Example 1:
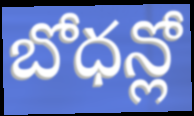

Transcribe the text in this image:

బోధన్లో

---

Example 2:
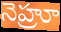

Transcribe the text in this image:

నెహ్రూ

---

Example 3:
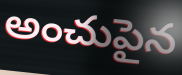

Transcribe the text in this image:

అంచుపైన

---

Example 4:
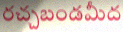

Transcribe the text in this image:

రచ్చబండమీద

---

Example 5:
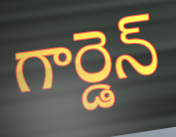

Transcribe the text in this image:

గార్డెన్